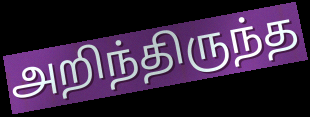
அறிந்திருந்த